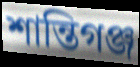
শান্তিগঞ্জ